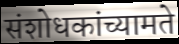
संशोधकांच्यामते